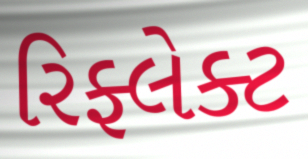
રિફ્લેક્ટ